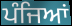
ਪੰਜਿਆਂ